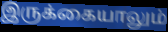
இருக்கையாலும்